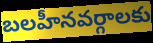
బలహీనవర్గాలకు